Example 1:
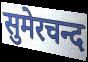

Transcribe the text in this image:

सुमेरचन्द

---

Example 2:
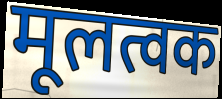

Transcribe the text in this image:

मूलत्वक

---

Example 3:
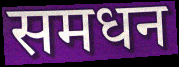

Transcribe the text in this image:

समधन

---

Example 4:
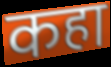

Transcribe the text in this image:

कहा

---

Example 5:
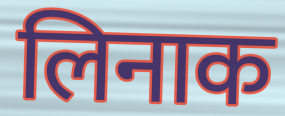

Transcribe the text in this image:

लिनाक